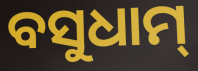
ବସୁଧାମ୍